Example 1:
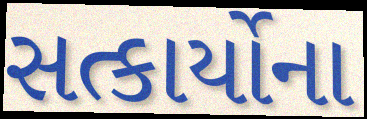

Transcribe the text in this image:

સત્કાર્યોના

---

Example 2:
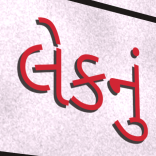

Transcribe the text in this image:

લેકનું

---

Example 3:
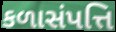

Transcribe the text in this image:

કળાસંપત્તિ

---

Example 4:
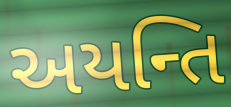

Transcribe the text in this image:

અયન્તિ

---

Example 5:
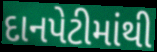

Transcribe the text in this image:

દાનપેટીમાંથી